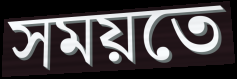
সময়তে